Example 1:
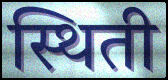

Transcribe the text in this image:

स्थिती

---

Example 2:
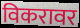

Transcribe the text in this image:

विकरावर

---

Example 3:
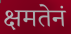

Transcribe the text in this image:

क्षमतेनं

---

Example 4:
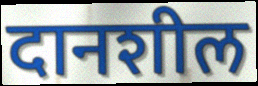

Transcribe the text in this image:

दानशील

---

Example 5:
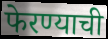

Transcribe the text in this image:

फेरण्याची